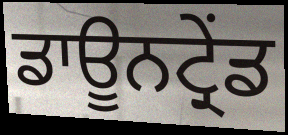
ਡਾਊਨਟ੍ਰੇਂਡ